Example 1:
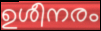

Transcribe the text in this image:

ഉശീനരം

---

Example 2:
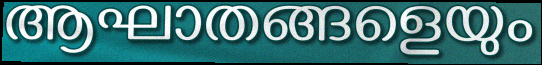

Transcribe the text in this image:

ആഘാതങ്ങളെയും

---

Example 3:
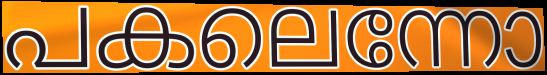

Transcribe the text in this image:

പകലെന്നോ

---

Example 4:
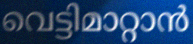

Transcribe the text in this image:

വെട്ടിമാറ്റാൻ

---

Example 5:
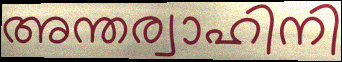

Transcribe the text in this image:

അന്തര്വാഹിനി